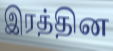
இரத்தின